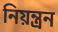
নিয়ন্ত্রন